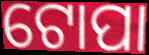
ଟୋପା